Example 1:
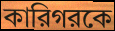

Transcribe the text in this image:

কারিগরকে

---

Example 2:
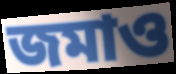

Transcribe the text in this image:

জমাও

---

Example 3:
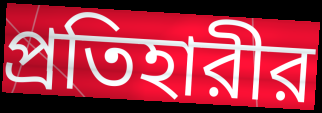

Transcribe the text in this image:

প্রতিহারীর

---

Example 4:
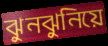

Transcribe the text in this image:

ঝুনঝুনিয়ে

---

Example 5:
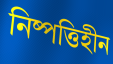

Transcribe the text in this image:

নিষ্পত্তিহীন